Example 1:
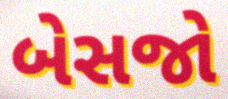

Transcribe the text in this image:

બેસજો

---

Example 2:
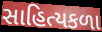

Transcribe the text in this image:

સાહિત્યકળા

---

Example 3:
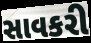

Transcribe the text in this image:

સાવકરી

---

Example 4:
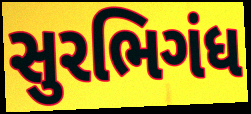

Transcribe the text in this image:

સુરભિગંધ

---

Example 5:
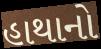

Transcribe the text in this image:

હાથાનો